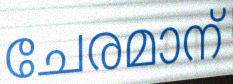
ചേരമാന്